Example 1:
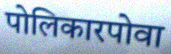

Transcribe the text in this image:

पोलिकारपोवा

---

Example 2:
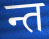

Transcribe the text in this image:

न्त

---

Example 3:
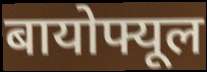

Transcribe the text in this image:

बायोफ्यूल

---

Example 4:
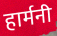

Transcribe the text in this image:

हार्मनी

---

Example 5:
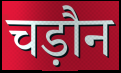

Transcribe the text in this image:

चड़ौन